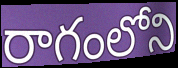
రాగంలోని